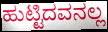
ಹುಟ್ಟಿದವನಲ್ಲ